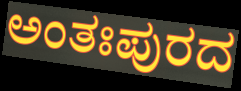
ಅಂತಃಪುರದ